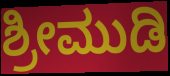
ಶ್ರೀಮುಡಿ